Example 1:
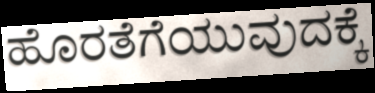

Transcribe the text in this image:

ಹೊರತೆಗೆಯುವುದಕ್ಕೆ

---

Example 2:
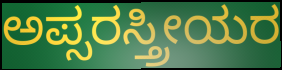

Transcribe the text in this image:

ಅಪ್ಸರಸ್ತ್ರೀಯರ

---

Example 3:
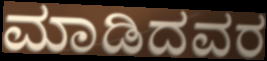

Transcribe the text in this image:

ಮಾಡಿದವರ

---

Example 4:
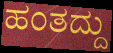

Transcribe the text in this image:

ಹಂತದ್ದು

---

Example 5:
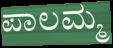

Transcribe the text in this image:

ಪಾಲಮ್ಮ